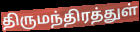
திருமந்திரத்துள்